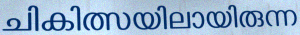
ചികിത്സയിലായിരുന്ന